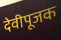
देवीपूजक